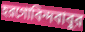
হরগোবিন্দবাবুর